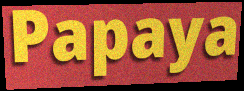
Papaya